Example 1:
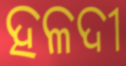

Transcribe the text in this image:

ହଳଦୀ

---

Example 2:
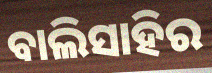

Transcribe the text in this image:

ବାଲିସାହିର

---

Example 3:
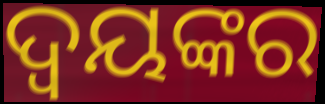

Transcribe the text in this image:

ଦ୍ବୟଙ୍କର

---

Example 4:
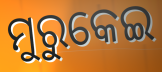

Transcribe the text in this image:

ମୁରୁକେଇ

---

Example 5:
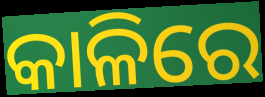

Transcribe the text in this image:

କାଳିରେ